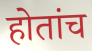
होतांच